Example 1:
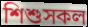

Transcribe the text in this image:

শিশুসকল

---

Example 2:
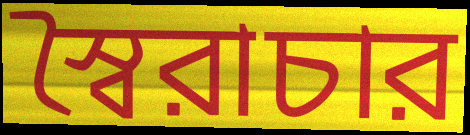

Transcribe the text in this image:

স্বৈরাচার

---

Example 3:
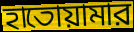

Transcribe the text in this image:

হাতোয়ামার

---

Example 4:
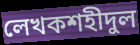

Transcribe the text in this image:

লেখকশহীদুল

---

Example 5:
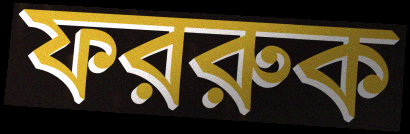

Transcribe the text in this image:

ফররুক